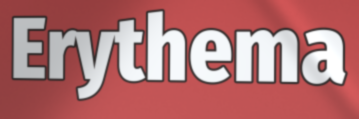
Erythema